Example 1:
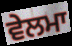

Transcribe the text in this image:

ਵੇਲਮਾ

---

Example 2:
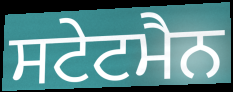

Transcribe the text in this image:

ਸਟੇਟਮੈਨ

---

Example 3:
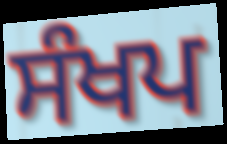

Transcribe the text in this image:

ਸੰਖਪ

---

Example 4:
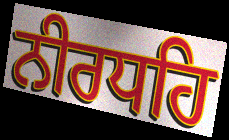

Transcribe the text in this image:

ਨੀਰਧਹਿ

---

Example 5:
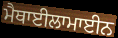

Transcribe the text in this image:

ਮੈਥਾਈਲਾਮਾਈਨ